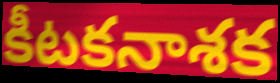
కీటకనాశక